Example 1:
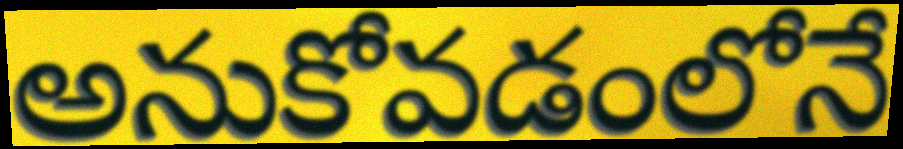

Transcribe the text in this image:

అనుకోవడంలోనే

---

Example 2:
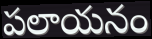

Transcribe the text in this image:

పలాయనం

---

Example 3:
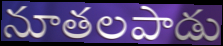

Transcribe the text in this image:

నూతలపాడు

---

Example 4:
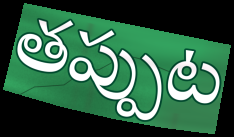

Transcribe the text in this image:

తప్పుట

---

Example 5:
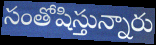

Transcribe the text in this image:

సంతోషిస్తున్నారు